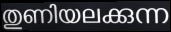
തുണിയലക്കുന്ന